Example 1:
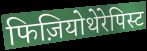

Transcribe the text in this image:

फिज़ियोथेरेपिस्ट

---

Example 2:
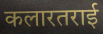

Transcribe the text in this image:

कलारतराई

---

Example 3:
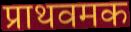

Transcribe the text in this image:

प्राथवमक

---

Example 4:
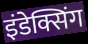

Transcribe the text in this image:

इंडेक्सिंग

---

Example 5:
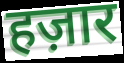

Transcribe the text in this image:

हज़ार